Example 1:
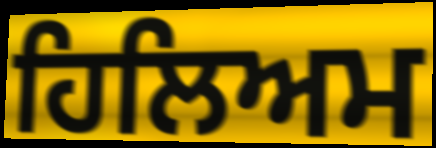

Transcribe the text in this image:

ਹਿਲਿਅਮ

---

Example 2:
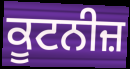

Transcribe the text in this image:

ਕੂਟਨੀਜ਼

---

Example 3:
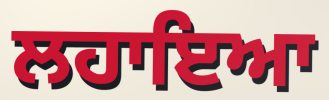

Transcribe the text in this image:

ਲਹਾਇਆ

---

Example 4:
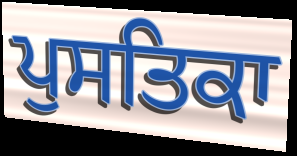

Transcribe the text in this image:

ਪੁਸਤਿਕਾ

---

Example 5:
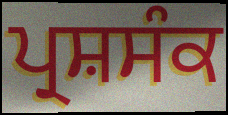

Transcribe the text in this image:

ਪ੍ਰਸ਼ਸੰਕ